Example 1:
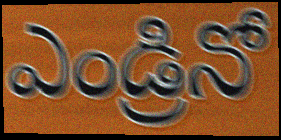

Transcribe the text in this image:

ఎండ్రినో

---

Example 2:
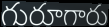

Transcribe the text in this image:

గురూగారు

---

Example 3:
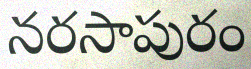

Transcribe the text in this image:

నరసాపురం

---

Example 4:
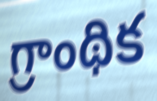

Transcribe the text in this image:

గ్రాంథిక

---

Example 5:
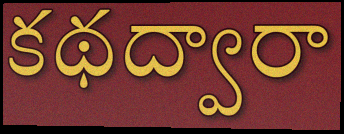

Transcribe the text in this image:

కథద్వారా